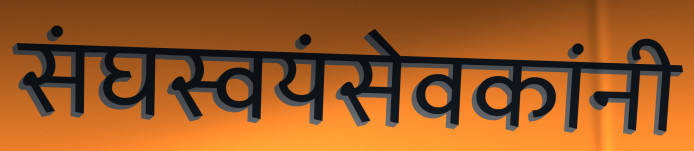
संघस्वयंसेवकांनी